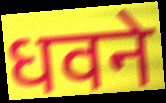
धवने